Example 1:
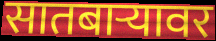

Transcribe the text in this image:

सातबाऱ्यावर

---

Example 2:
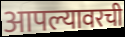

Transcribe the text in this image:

आपल्यावरची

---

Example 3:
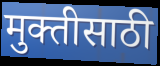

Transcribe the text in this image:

मुक्तीसाठी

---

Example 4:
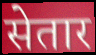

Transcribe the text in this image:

सेतार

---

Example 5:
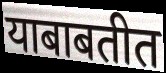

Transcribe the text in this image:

याबाबतीत